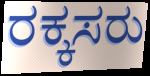
ರಕ್ಕಸರು